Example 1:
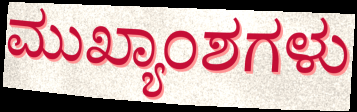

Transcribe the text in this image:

ಮುಖ್ಯಾಂಶಗಳು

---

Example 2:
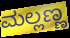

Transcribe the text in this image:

ಮಲ್ಲಣ್ಣ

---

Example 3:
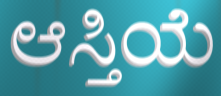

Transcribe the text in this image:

ಆಸ್ತಿಯೆ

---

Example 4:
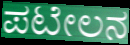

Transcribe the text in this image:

ಪಟೇಲನ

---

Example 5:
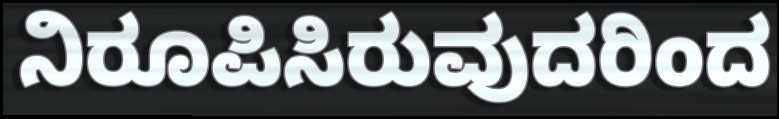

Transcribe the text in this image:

ನಿರೂಪಿಸಿರುವುದರಿಂದ